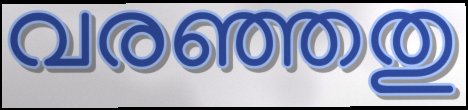
വരഞ്ഞതു